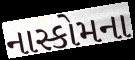
નાસ્કોમના